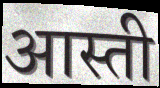
आस्ती